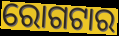
ରୋଗଟାର